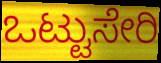
ಒಟ್ಟುಸೇರಿ